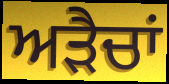
ਅੜੈਚਾਂ